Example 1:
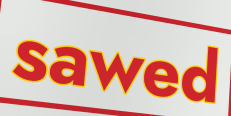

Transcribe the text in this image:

sawed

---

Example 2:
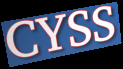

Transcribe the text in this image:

CYSS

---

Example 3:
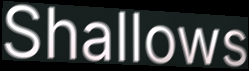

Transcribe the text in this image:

Shallows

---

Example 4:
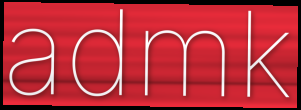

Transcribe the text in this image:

admk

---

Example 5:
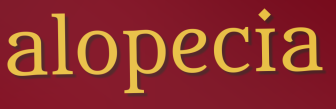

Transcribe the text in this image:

alopecia